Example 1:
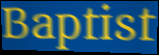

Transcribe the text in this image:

Baptist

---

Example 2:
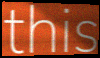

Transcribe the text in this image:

this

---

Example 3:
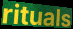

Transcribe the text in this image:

rituals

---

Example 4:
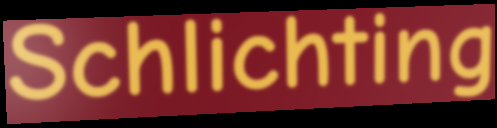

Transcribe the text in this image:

Schlichting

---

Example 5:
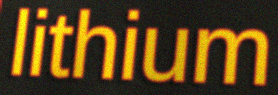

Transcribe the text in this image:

lithium